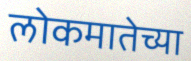
लोकमातेच्या